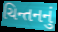
ચિન્તનનું